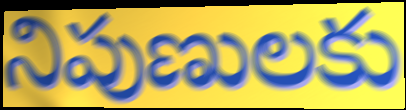
నిపుణులకు